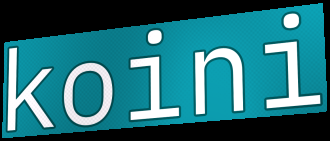
koini